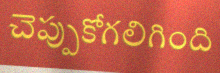
చెప్పుకోగలిగింది